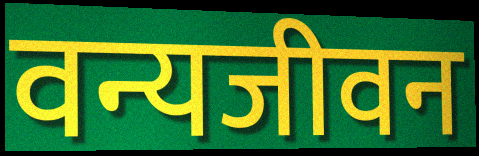
वन्यजीवन